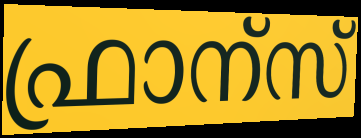
ഫ്രാന്സ്